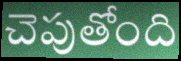
చెపుతోంది